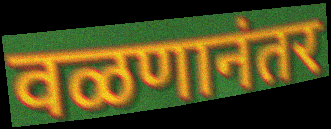
वळणानंतर